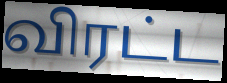
விரட்ட